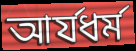
আর্যধর্ম